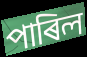
পাৰিল